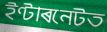
ইণ্টাৰনেটত